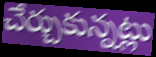
చేర్చుకున్నట్లు